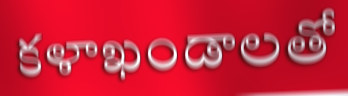
కళాఖండాలతో